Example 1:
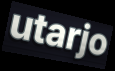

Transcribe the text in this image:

utarjo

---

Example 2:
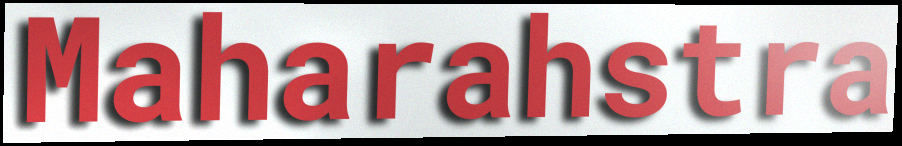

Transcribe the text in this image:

Maharahstra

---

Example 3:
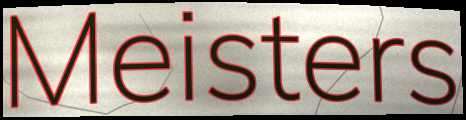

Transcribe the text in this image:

Meisters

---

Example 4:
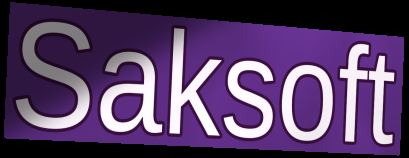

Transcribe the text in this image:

Saksoft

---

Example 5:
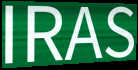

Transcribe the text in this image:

IRAS